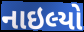
નાઇલ્યો